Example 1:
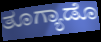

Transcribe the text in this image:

ತೂಗ್ಯಾಡೊ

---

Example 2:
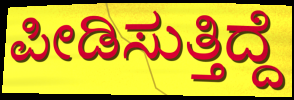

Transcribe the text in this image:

ಪೀಡಿಸುತ್ತಿದ್ದೆ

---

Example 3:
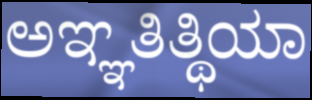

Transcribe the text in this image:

ಅಞ್ಞತಿತ್ಥಿಯಾ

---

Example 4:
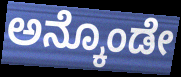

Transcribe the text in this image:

ಅನ್ಕೊಂಡೇ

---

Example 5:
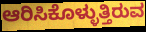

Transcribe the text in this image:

ಆರಿಸಿಕೊಳ್ಳುತ್ತಿರುವ